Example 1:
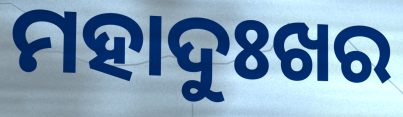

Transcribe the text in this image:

ମହାଦୁଃଖର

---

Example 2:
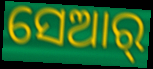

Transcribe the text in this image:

ସେଆର୍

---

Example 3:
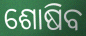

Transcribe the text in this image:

ଶୋଷିବ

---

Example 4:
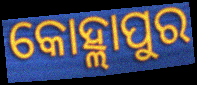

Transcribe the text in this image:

କୋହ୍ଲାପୁର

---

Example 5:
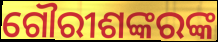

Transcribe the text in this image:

ଗୌରୀଶଙ୍କରଙ୍କ